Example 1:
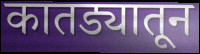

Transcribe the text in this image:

कातड्यातून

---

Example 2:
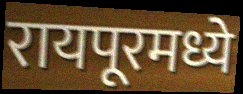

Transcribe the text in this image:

रायपूरमध्ये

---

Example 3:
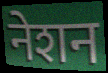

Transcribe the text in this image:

नेशन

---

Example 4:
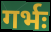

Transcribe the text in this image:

गर्भः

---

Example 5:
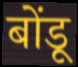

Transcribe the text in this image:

बोंडू